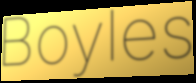
Boyles